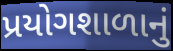
પ્રયોગશાળાનું